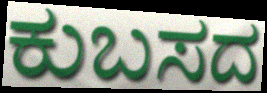
ಕುಬಸದ